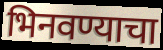
भिनवण्याचा